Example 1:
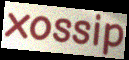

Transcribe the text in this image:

xossip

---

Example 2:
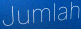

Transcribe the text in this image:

Jumlah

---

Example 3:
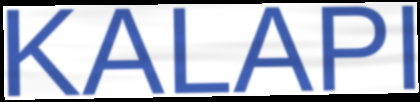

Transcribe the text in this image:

KALAPI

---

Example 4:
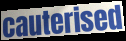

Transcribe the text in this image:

cauterised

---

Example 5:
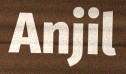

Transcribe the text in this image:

Anjil